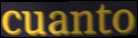
cuanto